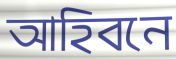
আহিবনে